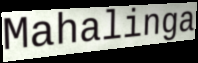
Mahalinga